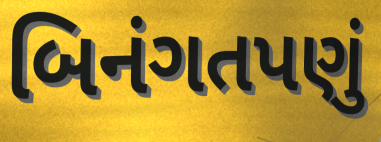
બિનંગતપણું